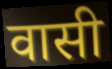
वासी